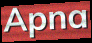
Apna